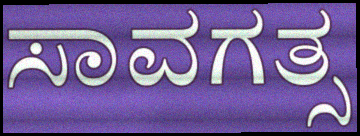
ಸಾವಗತ್ಸ